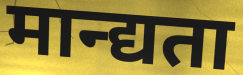
मान्द्यता